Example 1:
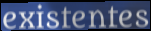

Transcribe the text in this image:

existentes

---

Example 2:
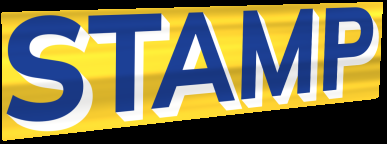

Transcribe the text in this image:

STAMP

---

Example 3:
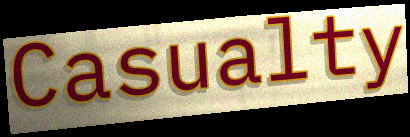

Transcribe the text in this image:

Casualty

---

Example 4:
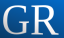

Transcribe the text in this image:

GR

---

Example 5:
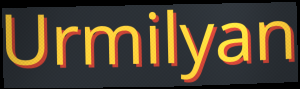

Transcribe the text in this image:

Urmilyan